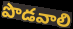
పొడవాలి